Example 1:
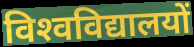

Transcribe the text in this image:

विश्‍वविद्यालयों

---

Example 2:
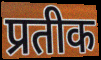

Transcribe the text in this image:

प्रतीक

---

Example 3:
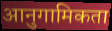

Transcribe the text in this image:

आनुगामिकता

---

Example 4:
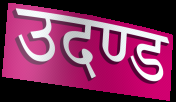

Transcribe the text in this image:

उदण्ड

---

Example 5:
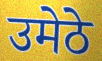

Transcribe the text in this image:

उमेठे